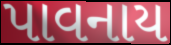
પાવનાય